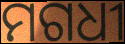
ମଗଧୀ